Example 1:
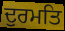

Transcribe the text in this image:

ਦੁਰਮਤਿ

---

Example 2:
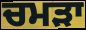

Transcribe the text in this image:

ਚਮੜਾ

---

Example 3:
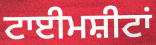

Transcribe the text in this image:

ਟਾਈਮਸ਼ੀਟਾਂ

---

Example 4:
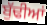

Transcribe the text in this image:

ਬੁੱਢੀਆਂ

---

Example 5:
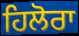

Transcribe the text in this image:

ਹਿਲੋਰਾ